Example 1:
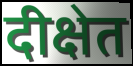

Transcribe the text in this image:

दीक्षेत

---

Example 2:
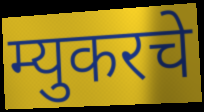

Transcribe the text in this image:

म्युकरचे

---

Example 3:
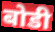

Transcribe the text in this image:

बोडी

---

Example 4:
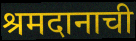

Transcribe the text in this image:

श्रमदानाची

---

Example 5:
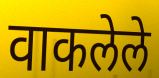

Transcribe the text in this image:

वाकलेले